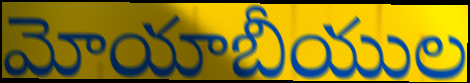
మోయాబీయుల